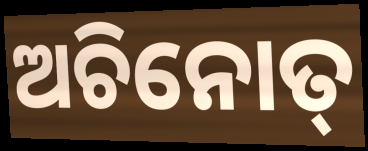
ଅଚିନୋତ୍